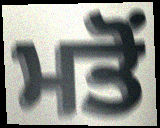
ਮਤੋਂ